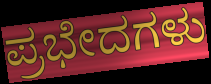
ಪ್ರಭೇದಗಳು